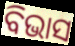
ବିଭାସ